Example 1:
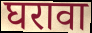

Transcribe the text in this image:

घरावा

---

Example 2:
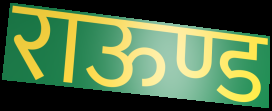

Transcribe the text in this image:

राऊण्ड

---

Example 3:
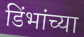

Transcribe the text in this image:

डिंभांच्या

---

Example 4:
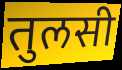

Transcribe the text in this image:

तुलसी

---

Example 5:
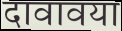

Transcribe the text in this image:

दावावया